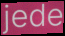
jede